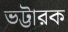
ভট্টারক